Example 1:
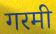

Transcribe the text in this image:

गरमी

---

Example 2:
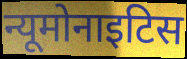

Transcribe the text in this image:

न्यूमोनाइटिस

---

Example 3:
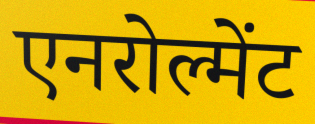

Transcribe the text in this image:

एनरोल्मेंट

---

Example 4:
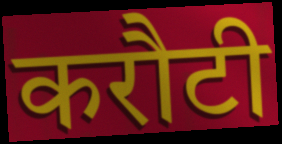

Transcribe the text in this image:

करौटी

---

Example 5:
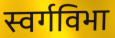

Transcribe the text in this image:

स्वर्गविभा